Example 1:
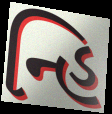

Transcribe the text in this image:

ન્હિ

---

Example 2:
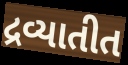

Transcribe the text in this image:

દ્રવ્યાતીત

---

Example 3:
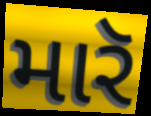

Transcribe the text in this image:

મારૅ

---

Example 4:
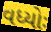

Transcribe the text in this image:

વધ્યોઃ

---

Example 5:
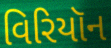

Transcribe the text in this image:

વિરિયૉન